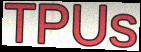
TPUs